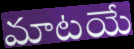
మాటయే